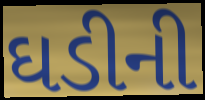
ઘડીની